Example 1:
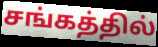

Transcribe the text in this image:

சங்கத்தில்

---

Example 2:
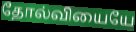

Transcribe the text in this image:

தோல்வியையே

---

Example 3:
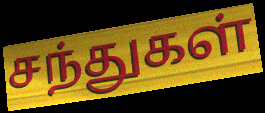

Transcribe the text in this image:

சந்துகள்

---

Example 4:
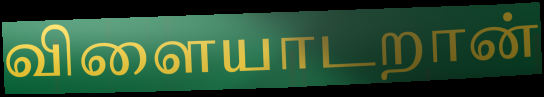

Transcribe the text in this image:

விளையாடறான்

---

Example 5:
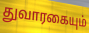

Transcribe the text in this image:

துவாரகையும்